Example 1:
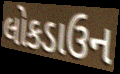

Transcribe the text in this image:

લોકડાઉન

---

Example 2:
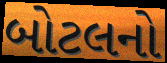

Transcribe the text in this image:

બોટલનો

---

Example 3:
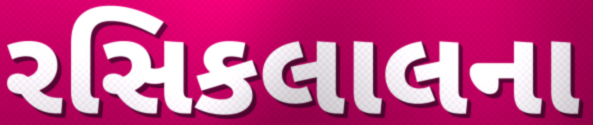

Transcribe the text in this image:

રસિકલાલના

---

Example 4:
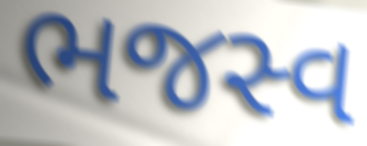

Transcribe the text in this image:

ભજસ્વ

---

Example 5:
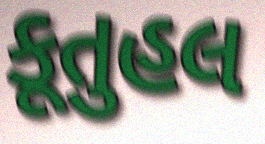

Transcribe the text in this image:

કૂતુહલ